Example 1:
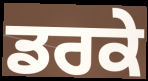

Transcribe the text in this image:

ਡਰਕੇ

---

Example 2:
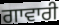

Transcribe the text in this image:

ਗਾਵਾਰੀ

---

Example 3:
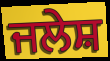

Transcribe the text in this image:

ਜਲੇਸ਼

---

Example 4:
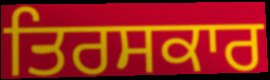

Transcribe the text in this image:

ਤਿਰਸਕਾਰ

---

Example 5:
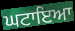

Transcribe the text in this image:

ਘਟਾਇਆ